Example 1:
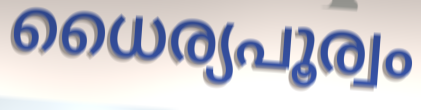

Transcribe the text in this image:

ധൈര്യപൂര്വം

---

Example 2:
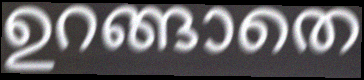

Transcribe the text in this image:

ഉറങ്ങാതെ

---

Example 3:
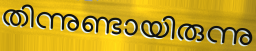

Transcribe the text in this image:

തിന്നുണ്ടായിരുന്നു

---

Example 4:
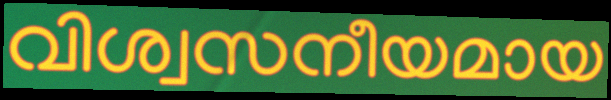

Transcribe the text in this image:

വിശ്വസനീയമായ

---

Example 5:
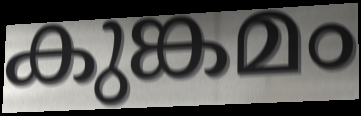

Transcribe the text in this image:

കുങ്കമം